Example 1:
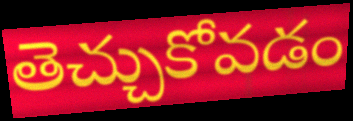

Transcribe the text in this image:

తెచ్చుకోవడం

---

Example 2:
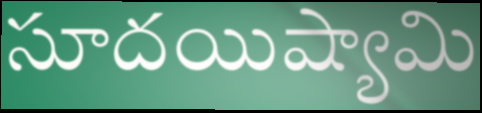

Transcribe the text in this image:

సూదయిష్యామి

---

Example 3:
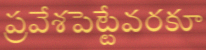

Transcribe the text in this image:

ప్రవేశపెట్టేవరకూ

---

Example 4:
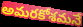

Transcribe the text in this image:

అమరకోశమనే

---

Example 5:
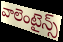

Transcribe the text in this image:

వాలెంటైన్స్